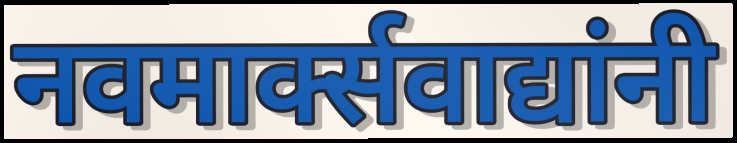
नवमार्क्सवाद्यांनी